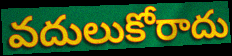
వదులుకోరాదు